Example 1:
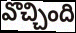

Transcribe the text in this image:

వొచ్చింది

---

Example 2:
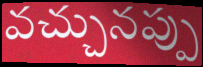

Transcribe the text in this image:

వచ్చునప్పు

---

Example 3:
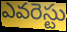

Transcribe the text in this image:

ఎవరెస్టు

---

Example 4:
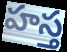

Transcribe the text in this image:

హస్త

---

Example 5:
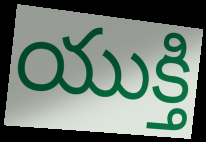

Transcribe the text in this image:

యుక్తి